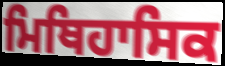
ਮਿਥਿਹਾਸਿਕ